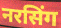
नरसिंग